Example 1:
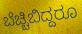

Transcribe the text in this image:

ಬೆಚ್ಚಿಬಿದ್ದರೂ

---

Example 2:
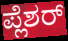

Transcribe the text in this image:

ಪ್ಲೆಶರ್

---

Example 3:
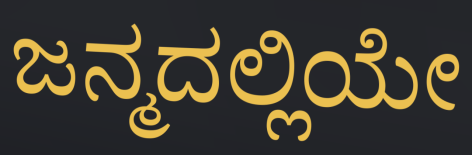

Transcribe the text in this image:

ಜನ್ಮದಲ್ಲಿಯೇ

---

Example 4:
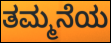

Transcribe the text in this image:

ತಮ್ಮನೆಯ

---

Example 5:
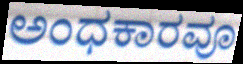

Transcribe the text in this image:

ಅಂಧಕಾರವೂ